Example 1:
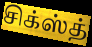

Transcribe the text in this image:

சிக்ஸ்த்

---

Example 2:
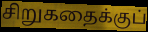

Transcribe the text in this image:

சிறுகதைக்குப்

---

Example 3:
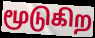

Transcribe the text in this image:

மூடுகிற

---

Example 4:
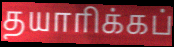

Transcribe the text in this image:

தயாரிக்கப்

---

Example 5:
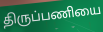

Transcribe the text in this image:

திருப்பணியை